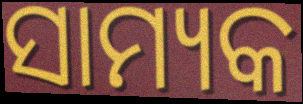
ସାମ୍ୟକ